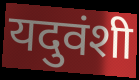
यदुवंशी